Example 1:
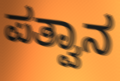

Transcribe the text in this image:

ಪತ್ವಾನ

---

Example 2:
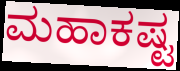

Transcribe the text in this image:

ಮಹಾಕಷ್ಟ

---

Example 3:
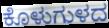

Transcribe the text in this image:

ಕೊಳುಗುಳದ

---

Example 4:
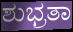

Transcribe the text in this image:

ಶುಭ್ರತಾ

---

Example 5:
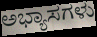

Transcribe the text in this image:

ಅಭ್ಯಾಸಗಳು